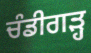
ਚੰਡੀਗੜ੍ਹ